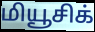
மியூசிக்